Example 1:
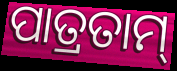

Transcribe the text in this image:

ପାତ୍ରତାମ୍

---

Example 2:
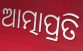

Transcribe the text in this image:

ଆତ୍ମାପ୍ରତି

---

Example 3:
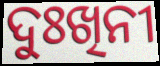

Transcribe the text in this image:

ଦୁଃଖିନୀ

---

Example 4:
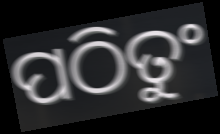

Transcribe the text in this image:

ପଠିତୁଂ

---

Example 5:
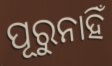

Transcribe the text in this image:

ପୂରୁନାହିଁ